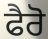
ਫੈਰੋ